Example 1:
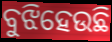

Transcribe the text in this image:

ବୁଝିହେଉଛି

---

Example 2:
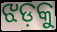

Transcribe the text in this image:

ଝଡ଼କୁ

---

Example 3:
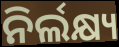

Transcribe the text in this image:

ନିର୍ଲକ୍ଷ୍ୟ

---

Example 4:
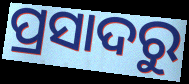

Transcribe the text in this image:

ପ୍ରସାଦରୁ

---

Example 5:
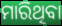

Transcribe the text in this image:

ମାରିଥିବା